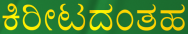
ಕಿರೀಟದಂತಹ